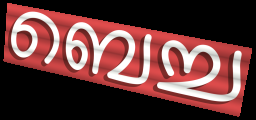
ബെച്ച